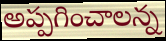
అప్పగించాలన్న